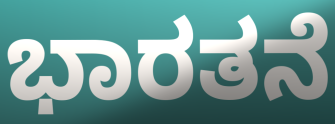
ಭಾರತನೆ